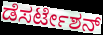
ಡೆಸರ್ಟೇಶನ್